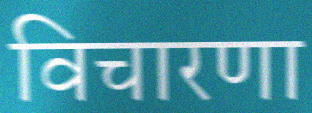
विचारणा